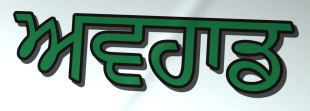
ਅਵਹਾਡ